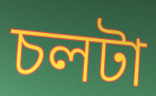
চলটা